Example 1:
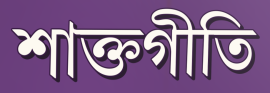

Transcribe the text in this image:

শাক্তগীতি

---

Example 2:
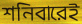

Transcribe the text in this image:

শনিবারেই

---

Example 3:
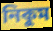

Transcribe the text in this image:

নিকুম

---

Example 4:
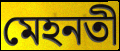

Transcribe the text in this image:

মেহনতী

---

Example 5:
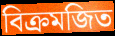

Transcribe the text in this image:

বিক্রমজিত